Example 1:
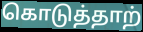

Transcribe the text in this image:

கொடுத்தாற்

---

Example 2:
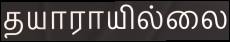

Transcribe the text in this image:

தயாராயில்லை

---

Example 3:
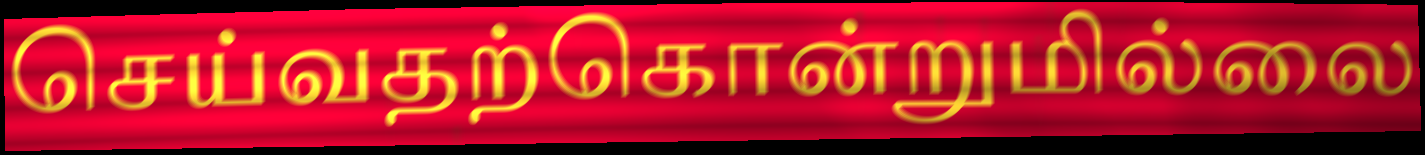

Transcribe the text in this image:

செய்வதற்கொன்றுமில்லை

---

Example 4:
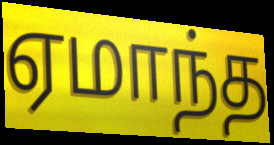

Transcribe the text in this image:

ஏமாந்த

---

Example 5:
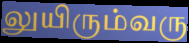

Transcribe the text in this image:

லுயிரும்வரு